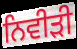
ਨਿਵੀੜੀ